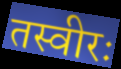
तस्वीरः